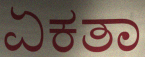
ಏಕತಾ